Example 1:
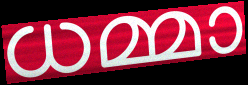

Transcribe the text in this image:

ധമ്മാ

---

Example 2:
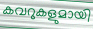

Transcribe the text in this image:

കവറുകളുമായി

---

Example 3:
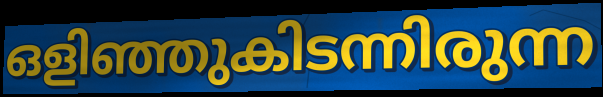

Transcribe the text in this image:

ഒളിഞ്ഞുകിടന്നിരുന്ന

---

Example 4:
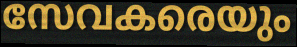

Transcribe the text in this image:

സേവകരെയും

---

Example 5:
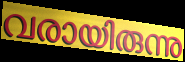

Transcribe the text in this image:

വരായിരുന്നു